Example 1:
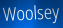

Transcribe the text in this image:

Woolsey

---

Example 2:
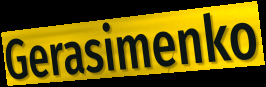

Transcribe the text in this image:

Gerasimenko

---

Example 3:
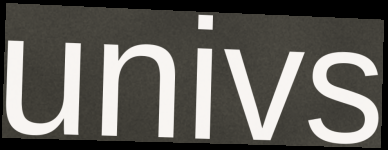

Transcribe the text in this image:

univs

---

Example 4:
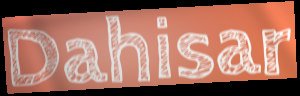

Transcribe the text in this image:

Dahisar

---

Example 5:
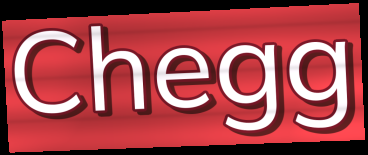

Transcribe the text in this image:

Chegg